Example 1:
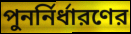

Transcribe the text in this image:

পুনর্নির্ধারণের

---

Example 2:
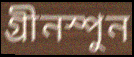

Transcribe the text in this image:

গ্রীনস্পুন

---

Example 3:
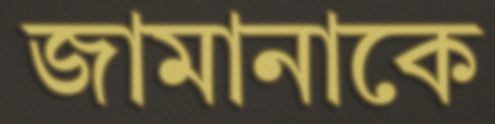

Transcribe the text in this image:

জামানাকে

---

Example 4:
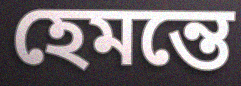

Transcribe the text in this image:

হেমন্তে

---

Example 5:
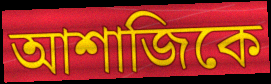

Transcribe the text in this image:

আশাজিকে